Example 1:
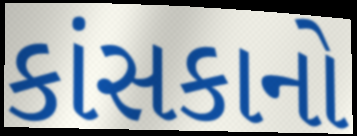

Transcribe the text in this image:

કાંસકાનો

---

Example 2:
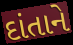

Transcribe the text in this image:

દાંતાને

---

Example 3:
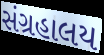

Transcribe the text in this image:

સંગ્રહાલય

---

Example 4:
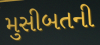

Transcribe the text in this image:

મુસીબતની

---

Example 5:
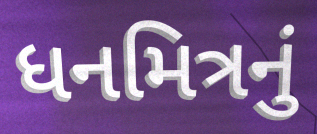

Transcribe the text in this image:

ધનમિત્રનું